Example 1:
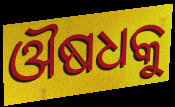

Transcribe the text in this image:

ଔଷଧକୁ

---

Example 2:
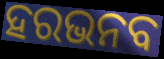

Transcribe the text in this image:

ହରଭନବ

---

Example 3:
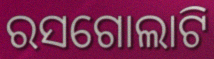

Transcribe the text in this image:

ରସଗୋଲାଟି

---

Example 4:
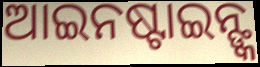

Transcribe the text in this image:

ଆଇନଷ୍ଟାଇନ୍ଙ୍କ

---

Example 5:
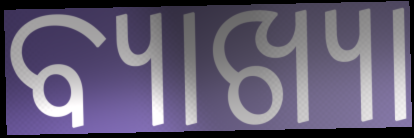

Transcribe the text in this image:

ବ୍ୟାଖ୍ୟା